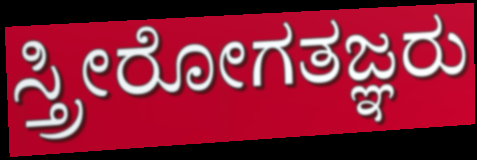
ಸ್ತ್ರೀರೋಗತಜ್ಞರು